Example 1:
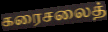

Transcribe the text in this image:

கரைசலைத்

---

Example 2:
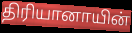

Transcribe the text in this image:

திரியானாயின்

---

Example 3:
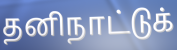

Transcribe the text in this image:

தனிநாட்டுக்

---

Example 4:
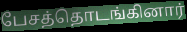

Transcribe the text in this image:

பேசத்தொடங்கினார்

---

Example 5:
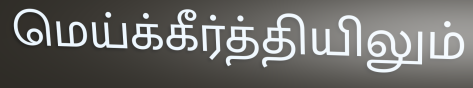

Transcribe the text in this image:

மெய்க்கீர்த்தியிலும்